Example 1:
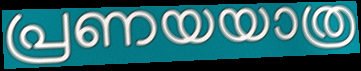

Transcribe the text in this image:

പ്രണയയാത്ര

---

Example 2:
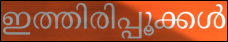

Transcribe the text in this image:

ഇത്തിരിപ്പൂക്കൾ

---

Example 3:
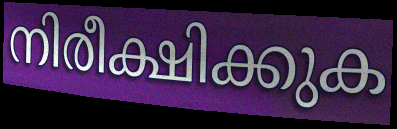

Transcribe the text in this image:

നിരീക്ഷിക്കുക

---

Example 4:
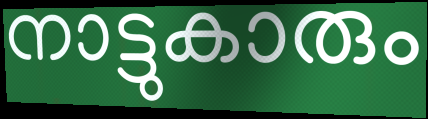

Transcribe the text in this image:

നാട്ടുകാരും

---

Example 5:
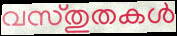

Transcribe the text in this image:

വസ്തുതകൾ